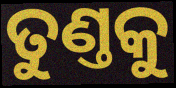
ତୁଣ୍ତକୁ